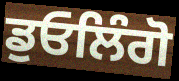
ਡੁਓਲਿੰਗੋ